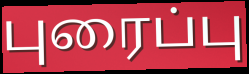
புரைப்பு